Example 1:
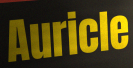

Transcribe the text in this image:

Auricle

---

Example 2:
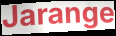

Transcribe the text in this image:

Jarange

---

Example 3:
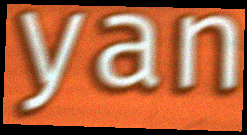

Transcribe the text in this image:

yan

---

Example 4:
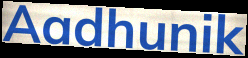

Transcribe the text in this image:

Aadhunik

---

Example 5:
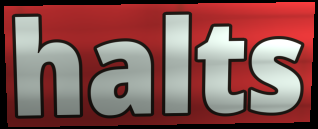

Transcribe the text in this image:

halts